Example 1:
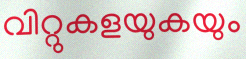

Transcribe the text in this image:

വിറ്റുകളയുകയും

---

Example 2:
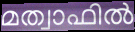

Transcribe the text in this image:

മത്വാഫിൽ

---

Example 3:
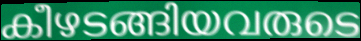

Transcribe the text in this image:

കീഴടങ്ങിയവരുടെ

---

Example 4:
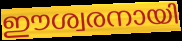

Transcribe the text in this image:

ഈശ്വരനായി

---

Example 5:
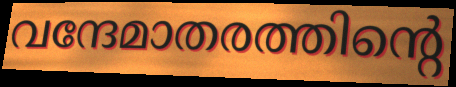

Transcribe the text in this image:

വന്ദേമാതരത്തിന്റെ